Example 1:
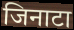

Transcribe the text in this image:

जिनाटा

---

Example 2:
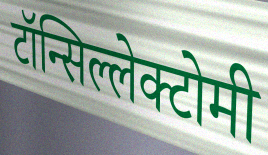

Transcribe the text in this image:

टॉन्सिल्लेक्टोमी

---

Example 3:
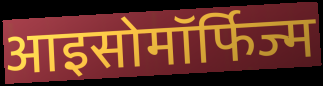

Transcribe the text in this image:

आइसोमॉर्फिज्म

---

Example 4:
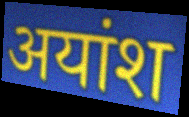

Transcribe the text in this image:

अयांश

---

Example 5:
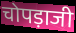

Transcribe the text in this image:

चोपड़ाजी